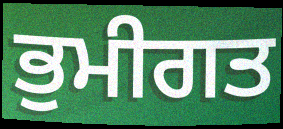
ਭੁਮੀਗਤ